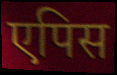
एपिस